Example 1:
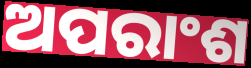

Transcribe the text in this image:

ଅପରାଂଶ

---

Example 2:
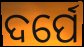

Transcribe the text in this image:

ଦର୍ପେ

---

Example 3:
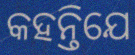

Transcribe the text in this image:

କହନ୍ତିଯେ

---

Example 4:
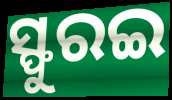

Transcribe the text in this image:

ସ୍ଫୁରଇ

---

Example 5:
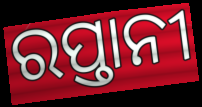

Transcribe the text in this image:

ରପ୍ତାନୀ